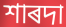
শাৰদা